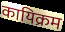
कायिक्रम